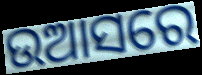
ଉଆସରେ